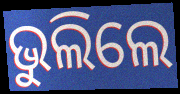
ଭୁଲିଲେ